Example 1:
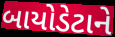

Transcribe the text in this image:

બાયોડેટાને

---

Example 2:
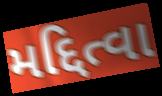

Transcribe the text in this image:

મદ્દિત્વા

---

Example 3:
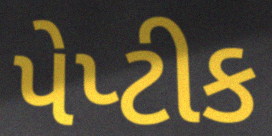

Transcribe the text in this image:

પેપ્ટીક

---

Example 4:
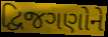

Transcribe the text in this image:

દ્વિજગણોને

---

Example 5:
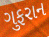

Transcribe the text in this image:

ગુફરાન